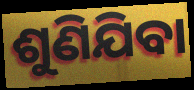
ଶୁଣିଯିବା